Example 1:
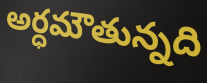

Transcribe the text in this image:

అర్ధమౌతున్నది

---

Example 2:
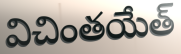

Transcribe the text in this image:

విచింతయేత్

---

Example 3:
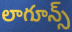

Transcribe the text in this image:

లాగూన్స్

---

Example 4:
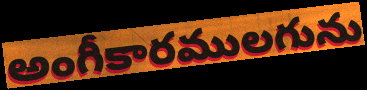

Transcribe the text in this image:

అంగీకారములగును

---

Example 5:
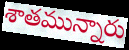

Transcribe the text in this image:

శాతమున్నారు